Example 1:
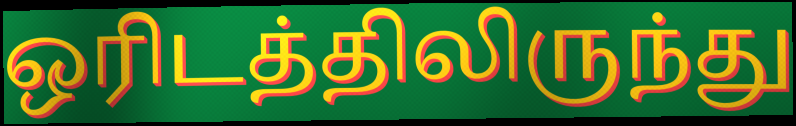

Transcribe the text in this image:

ஒரிடத்திலிருந்து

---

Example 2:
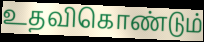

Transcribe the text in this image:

உதவிகொண்டும்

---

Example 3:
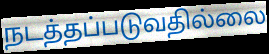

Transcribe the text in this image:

நடத்தப்படுவதில்லை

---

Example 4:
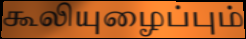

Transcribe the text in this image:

கூலியுழைப்பும்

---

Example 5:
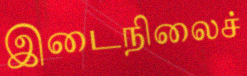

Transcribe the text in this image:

இடைநிலைச்